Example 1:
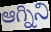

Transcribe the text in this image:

ఆగ్నిని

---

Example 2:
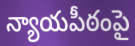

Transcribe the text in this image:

న్యాయపీఠంపై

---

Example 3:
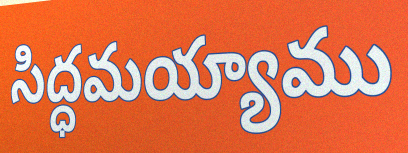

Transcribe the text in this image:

సిద్ధమయ్యాము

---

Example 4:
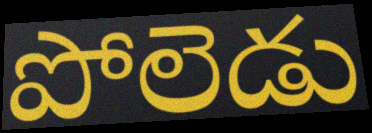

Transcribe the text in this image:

పోలెడు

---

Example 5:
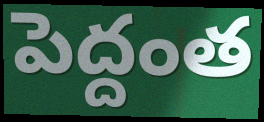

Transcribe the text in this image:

పెద్దంత